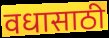
वधासाठी